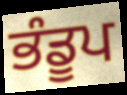
ਭੰਡੂਪ